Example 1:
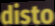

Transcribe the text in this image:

disto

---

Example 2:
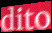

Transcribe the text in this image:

dito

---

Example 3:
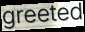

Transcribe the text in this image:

greeted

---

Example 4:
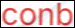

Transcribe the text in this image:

conb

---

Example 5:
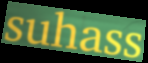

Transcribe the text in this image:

suhass